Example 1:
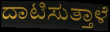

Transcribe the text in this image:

ದಾಟಿಸುತ್ತಾಳೆ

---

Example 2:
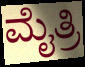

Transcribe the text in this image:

ಮೈತ್ರಿ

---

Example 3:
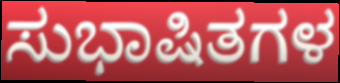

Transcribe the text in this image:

ಸುಭಾಷಿತಗಳ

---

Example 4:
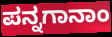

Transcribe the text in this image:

ಪನ್ನಗಾನಾಂ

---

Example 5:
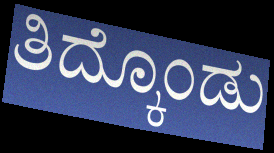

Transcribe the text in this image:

ತಿದ್ಕೊಂಡು